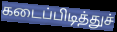
கடைப்பிடித்துச்